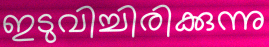
ഇടുവിച്ചിരിക്കുന്നു